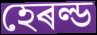
হেৰল্ড